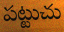
పట్టుచు